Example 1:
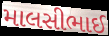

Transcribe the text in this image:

માલસીભાઈ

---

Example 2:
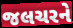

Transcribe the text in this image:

જલચરને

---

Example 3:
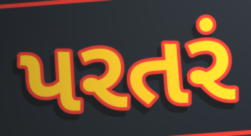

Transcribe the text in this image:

પરતરં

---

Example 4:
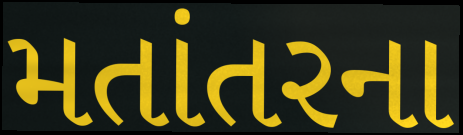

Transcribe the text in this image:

મતાંતરના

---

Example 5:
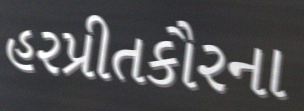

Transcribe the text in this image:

હરપ્રીતકૌરના